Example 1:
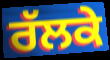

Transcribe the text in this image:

ਰੱਲਕੇ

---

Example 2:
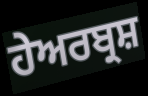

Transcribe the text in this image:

ਹੇਅਰਬ੍ਰਸ਼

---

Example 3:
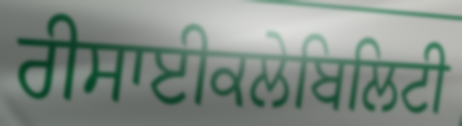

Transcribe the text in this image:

ਰੀਸਾਈਕਲੇਬਿਲਿਟੀ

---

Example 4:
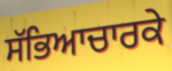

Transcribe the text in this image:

ਸੱਭਿਆਚਾਰਕੇ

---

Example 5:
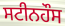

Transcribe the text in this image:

ਸਟੀਨਹੌਸ